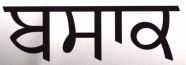
ਬਸਾਕ